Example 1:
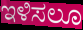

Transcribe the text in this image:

ಇಳಿಸಲೂ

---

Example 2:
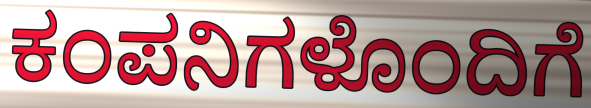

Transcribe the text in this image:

ಕಂಪನಿಗಳೊಂದಿಗೆ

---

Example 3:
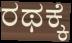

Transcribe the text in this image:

ರಥಕ್ಕೆ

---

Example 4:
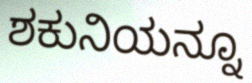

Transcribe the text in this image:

ಶಕುನಿಯನ್ನೂ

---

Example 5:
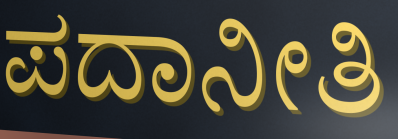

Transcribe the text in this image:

ಪದಾನೀತಿ